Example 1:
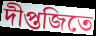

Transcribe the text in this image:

দীপ্তজিতে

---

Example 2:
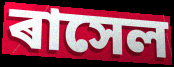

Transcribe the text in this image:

ৰাসেল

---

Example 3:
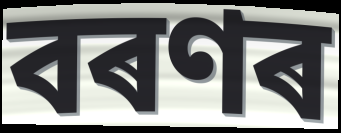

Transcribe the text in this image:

বৰণৰ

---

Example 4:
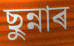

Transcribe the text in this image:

ছুন্নাৰ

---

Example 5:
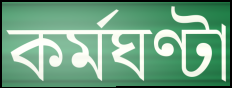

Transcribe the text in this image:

কৰ্মঘণ্টা